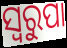
ସ୍ୱରୁପା